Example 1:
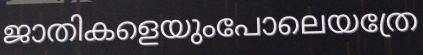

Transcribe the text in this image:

ജാതികളെയുംപോലെയത്രേ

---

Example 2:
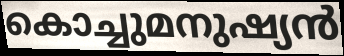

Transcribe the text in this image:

കൊച്ചുമനുഷ്യൻ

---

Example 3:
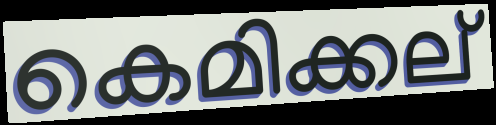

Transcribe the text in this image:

കെമിക്കല്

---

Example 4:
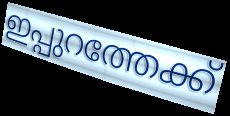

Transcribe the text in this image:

ഇപ്പുറത്തേക്ക്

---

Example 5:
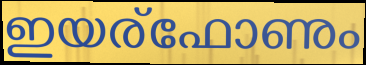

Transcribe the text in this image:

ഇയര്ഫോണും